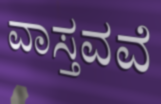
ವಾಸ್ತವವೆ